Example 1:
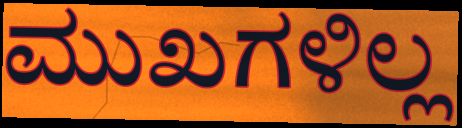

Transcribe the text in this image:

ಮುಖಗಳಿಲ್ಲ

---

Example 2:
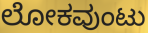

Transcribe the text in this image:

ಲೋಕವುಂಟು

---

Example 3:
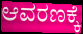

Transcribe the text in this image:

ಆವರಣಕ್ಕೆ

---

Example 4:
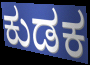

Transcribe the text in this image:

ಕುಡಕ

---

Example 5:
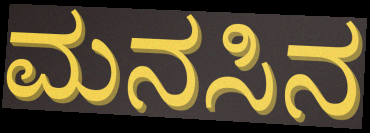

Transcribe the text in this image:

ಮನಸಿನ